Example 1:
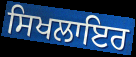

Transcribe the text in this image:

ਸਿਖਲਾਇਰ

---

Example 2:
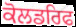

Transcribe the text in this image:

ਕੋਲਡਰਿਫ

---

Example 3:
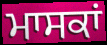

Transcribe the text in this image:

ਮਾਸਕਾਂ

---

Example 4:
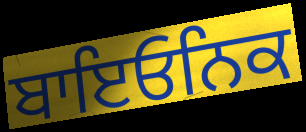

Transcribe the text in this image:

ਬਾਇਓਨਿਕ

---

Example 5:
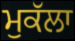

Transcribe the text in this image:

ਮੁਕੱਲਾ